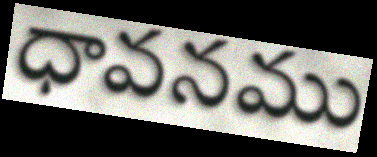
ధావనము